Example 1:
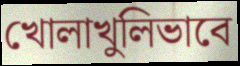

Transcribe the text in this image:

খোলাখুলিভাবে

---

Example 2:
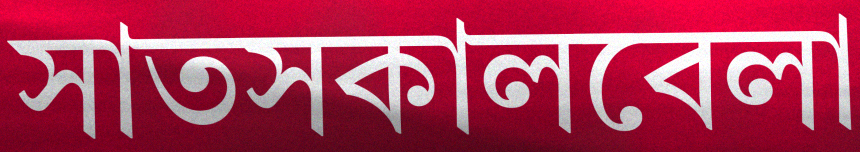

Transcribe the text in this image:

সাতসকালবেলা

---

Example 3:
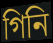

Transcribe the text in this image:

গিনি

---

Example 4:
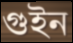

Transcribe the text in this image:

গুইন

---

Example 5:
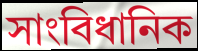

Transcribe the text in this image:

সাংবিধানিক